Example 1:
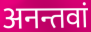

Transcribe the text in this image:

अनन्तवां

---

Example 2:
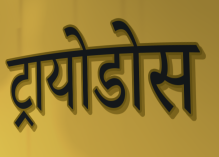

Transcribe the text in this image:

ट्रायोडोस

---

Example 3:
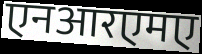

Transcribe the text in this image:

एनआरएमए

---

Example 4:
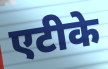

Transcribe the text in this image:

एटीके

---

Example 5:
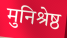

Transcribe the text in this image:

मुनिश्रेष्ठ